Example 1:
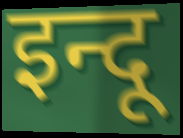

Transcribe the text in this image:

इन्दू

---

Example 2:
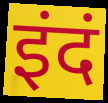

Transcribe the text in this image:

इंदं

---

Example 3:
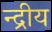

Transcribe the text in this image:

न्द्रीय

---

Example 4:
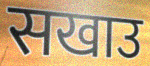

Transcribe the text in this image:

सखाउ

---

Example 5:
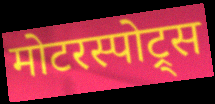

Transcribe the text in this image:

मोटरस्पोट्र्स